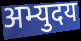
अभ्युदय